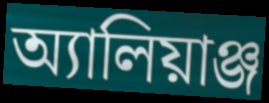
অ্যালিয়াঞ্জ